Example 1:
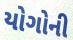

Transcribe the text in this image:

યોગોની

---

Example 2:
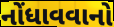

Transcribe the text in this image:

નોંધાવવાનો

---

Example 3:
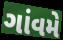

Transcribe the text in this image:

ગાંવમે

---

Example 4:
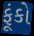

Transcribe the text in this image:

ફૂંકો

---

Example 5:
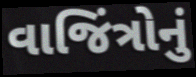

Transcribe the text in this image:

વાજિંત્રોનું